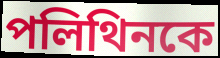
পলিথিনকে